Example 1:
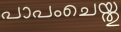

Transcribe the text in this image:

പാപംചെയ്തു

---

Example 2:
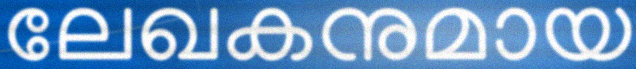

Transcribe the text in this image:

ലേഖകനുമായ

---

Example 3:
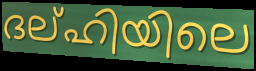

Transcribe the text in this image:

ദല്ഹിയിലെ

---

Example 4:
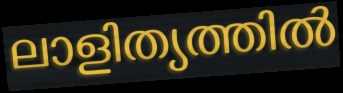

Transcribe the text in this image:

ലാളിത്യത്തിൽ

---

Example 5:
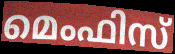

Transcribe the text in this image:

മെംഫിസ്